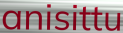
anisittu